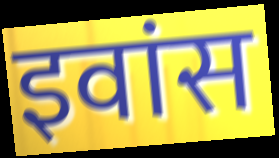
इवांस